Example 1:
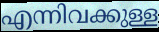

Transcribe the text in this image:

എന്നിവക്കുള്ള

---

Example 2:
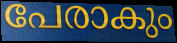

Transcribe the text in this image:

പേരാകും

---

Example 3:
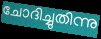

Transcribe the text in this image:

ചോദിച്ചുതിന്നു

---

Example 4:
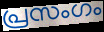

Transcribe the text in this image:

പ്രസംഗം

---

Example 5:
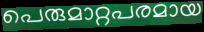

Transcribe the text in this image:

പെരുമാറ്റപരമായ